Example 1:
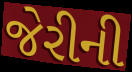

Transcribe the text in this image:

જેરીની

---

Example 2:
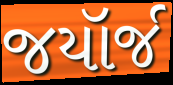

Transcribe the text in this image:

જયૉર્જ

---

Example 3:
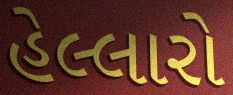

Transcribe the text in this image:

હેલ્લારો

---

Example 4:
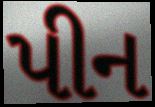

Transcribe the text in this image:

પીન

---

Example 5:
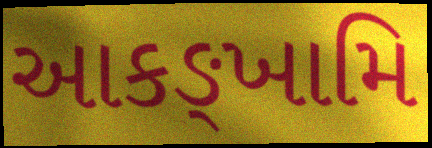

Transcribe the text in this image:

આકઙ્ખામિ